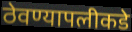
ठेवण्यापलीकडे